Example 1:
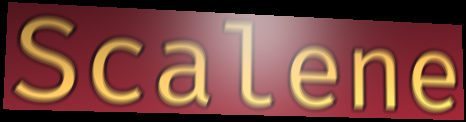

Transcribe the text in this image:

Scalene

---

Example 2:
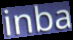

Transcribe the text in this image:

inba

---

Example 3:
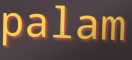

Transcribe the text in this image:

palam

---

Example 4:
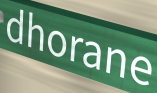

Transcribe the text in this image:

dhorane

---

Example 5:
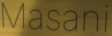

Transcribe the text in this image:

Masani